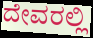
ದೇವರಲ್ಲಿ